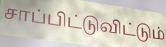
சாப்பிட்டுவிட்டும்